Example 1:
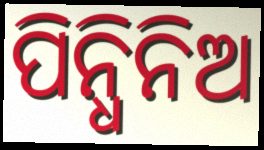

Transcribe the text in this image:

ପିନ୍ଧିନିଅ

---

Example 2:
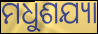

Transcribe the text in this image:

ମଧୁଶଯ୍ୟା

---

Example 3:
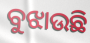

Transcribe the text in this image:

ବୁଝାଉଛି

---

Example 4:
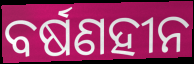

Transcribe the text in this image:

ବର୍ଷଣହୀନ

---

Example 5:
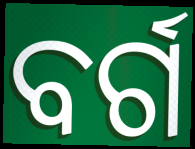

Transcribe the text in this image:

ବର୍ଗ